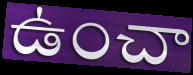
ఉంచా